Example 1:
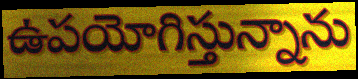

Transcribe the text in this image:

ఉపయోగిస్తున్నాను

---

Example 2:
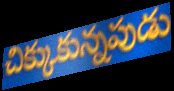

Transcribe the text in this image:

చిక్కుకున్నపుడు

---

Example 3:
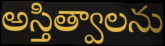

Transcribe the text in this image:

అస్తిత్వాలను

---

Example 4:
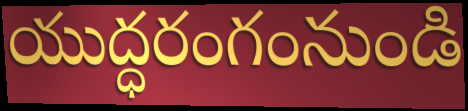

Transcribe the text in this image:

యుద్ధరంగంనుండి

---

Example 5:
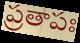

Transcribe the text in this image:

ప్రతాపః